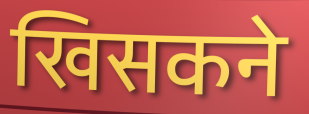
खिसकने